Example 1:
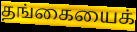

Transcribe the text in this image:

தங்கையைக்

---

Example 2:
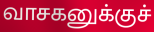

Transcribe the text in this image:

வாசகனுக்குச்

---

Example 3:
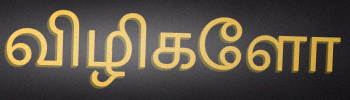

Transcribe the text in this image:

விழிகளோ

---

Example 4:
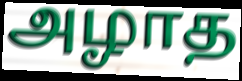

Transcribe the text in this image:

அழாத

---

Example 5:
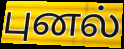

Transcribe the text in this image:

புனல்